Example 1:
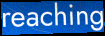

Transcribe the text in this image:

reaching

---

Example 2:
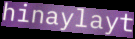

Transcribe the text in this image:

hinaylayt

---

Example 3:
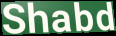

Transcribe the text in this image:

Shabd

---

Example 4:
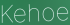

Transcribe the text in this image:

Kehoe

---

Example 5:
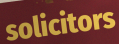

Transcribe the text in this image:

solicitors